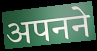
अपनने